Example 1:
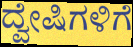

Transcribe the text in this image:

ದ್ವೇಷಿಗಳಿಗೆ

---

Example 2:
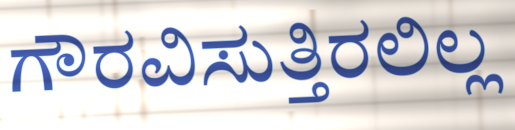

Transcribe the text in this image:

ಗೌರವಿಸುತ್ತಿರಲಿಲ್ಲ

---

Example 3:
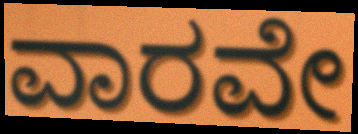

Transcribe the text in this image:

ವಾರವೇ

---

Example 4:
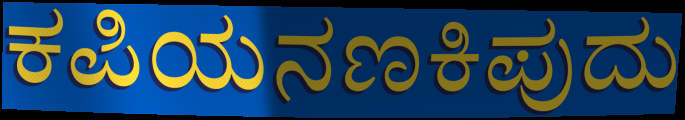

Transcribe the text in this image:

ಕಪಿಯನಣಕಿಪುದು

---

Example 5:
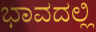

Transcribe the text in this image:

ಭಾವದಲ್ಲಿ